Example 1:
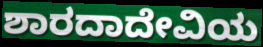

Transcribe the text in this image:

ಶಾರದಾದೇವಿಯ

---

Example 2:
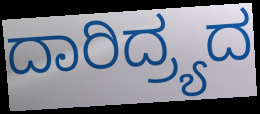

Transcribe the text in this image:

ದಾರಿದ್ರ್ಯದ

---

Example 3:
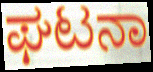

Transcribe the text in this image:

ಘಟನಾ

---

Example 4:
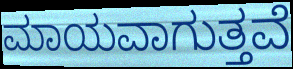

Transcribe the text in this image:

ಮಾಯವಾಗುತ್ತವೆ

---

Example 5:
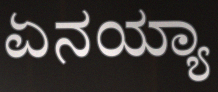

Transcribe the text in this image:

ಏನಯ್ಯಾ